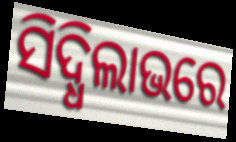
ସିଦ୍ଧିଲାଭରେ